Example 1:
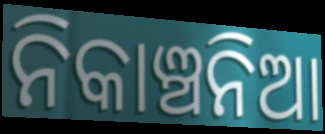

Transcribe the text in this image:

ନିକାଞ୍ଚନିଆ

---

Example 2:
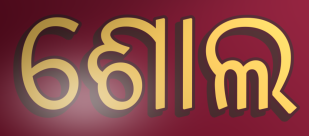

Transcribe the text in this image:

ଶୋଲ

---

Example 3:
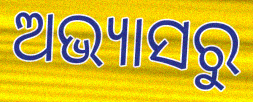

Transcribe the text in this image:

ଅଭ୍ୟାସରୁ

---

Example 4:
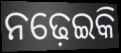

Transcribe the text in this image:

ନଢ଼େଇକି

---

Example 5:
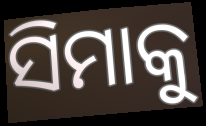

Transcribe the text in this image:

ସିମାକୁ